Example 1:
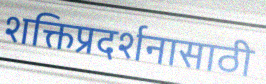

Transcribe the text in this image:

शक्तिप्रदर्शनासाठी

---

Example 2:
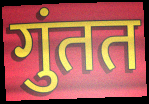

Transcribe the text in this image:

गुंतत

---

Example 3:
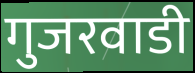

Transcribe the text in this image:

गुजरवाडी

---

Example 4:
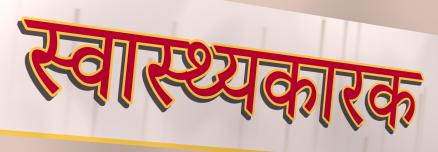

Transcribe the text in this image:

स्वास्थ्यकारक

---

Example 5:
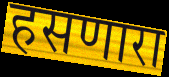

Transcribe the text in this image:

हसणारा